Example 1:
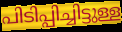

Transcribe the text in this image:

പിടിപ്പിച്ചിട്ടുള്ള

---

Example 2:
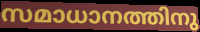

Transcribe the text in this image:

സമാധാനത്തിനു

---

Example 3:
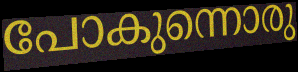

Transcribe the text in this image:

പോകുന്നൊരു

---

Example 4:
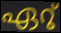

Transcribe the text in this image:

ഏറു്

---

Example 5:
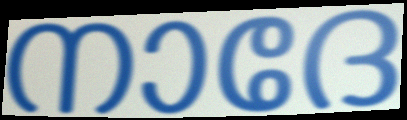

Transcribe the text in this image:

നാദേ